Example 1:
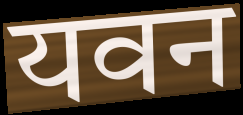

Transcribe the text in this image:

यवन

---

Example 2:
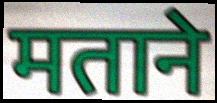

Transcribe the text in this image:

मताने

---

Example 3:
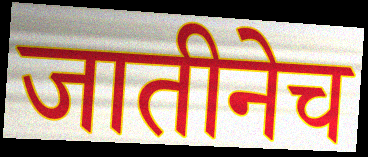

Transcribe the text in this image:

जातीनेच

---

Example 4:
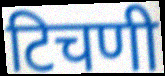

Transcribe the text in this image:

टिचणी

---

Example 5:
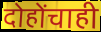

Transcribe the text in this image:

दोहोंचाही